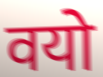
वयो